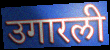
उगारली